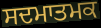
ਸਦਮਾਤਮਕ